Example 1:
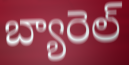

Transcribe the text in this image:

బ్యారెల్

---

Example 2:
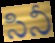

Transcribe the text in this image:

సినీ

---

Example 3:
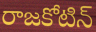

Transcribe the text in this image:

రాజకోటిన్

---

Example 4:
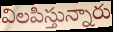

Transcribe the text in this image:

విలపిస్తున్నారు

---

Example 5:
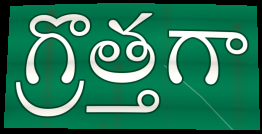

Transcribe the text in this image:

గ్రొత్తగా